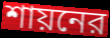
শায়নের